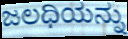
ಜಲಧಿಯನ್ನು